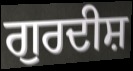
ਗੁਰਦੀਸ਼